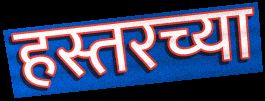
हस्तरच्या